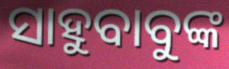
ସାହୁବାବୁଙ୍କ